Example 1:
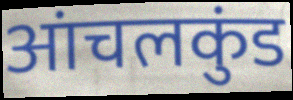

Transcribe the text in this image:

आंचलकुंड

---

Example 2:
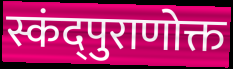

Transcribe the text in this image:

स्कंद्पुराणोक्त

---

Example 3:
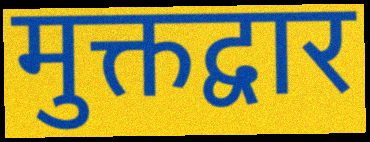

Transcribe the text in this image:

मुक्तद्वार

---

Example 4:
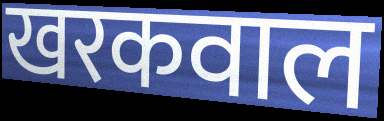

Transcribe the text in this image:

खरकवाल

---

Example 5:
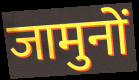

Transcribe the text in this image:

जामुनों